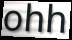
ohh